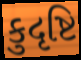
કુદૃષ્ટિ